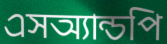
এসঅ্যান্ডপি